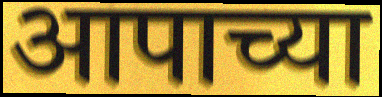
आपाच्या